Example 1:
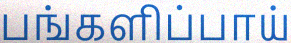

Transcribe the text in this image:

பங்களிப்பாய்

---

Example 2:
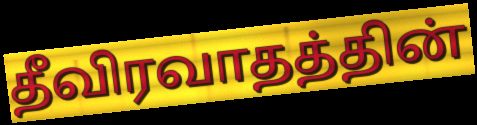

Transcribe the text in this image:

தீவிரவாதத்தின்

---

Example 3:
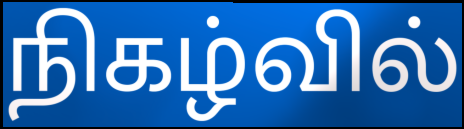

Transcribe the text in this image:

நிகழ்வில்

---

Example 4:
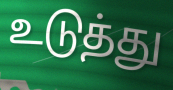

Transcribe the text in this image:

உடுத்து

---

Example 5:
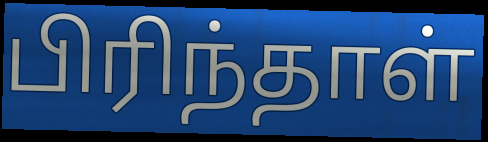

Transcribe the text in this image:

பிரிந்தாள்